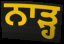
ਨਾੜ੍ਹ